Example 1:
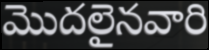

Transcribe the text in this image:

మొదలైనవారి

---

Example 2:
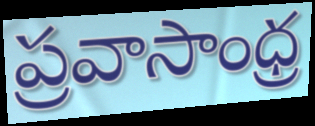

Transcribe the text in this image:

ప్రవాసాంధ్ర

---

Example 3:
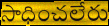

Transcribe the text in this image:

సాధించలేరు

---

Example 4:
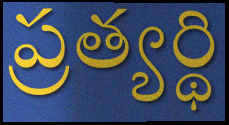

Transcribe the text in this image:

ప్రత్యర్థి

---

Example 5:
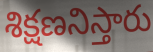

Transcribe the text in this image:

శిక్షణనిస్తారు